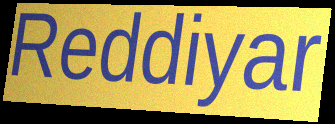
Reddiyar